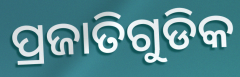
ପ୍ରଜାତିଗୁଡିକ